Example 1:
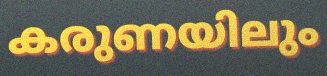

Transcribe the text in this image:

കരുണയിലും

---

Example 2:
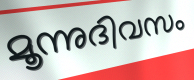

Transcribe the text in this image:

മൂന്നുദിവസം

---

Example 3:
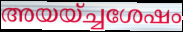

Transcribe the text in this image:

അയയ്ച്ചശേഷം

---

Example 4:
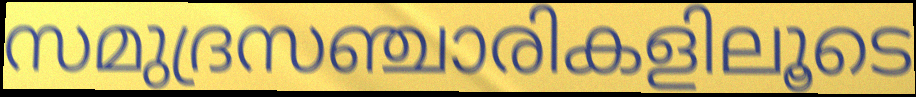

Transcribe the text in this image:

സമുദ്രസഞ്ചാരികളിലൂടെ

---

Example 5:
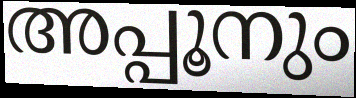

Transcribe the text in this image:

അപ്പൂനും